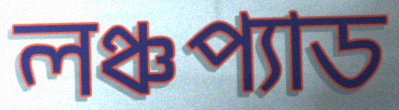
লঞ্চপ্যাড